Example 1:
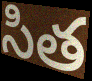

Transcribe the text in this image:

సిత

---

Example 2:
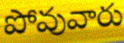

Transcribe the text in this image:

పోవువారు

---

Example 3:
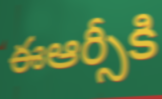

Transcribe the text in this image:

ఈఆర్సీకి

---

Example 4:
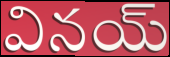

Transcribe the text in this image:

వినయ్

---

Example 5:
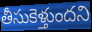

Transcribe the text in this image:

తీసుకెళ్తుందని